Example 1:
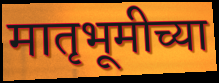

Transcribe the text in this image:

मातृभूमीच्या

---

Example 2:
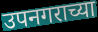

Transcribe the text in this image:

उपनगराच्या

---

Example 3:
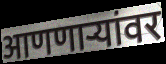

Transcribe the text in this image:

आणणाऱ्यांवर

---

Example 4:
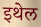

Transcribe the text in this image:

इथेल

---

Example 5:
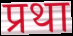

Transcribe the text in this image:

प्रथा